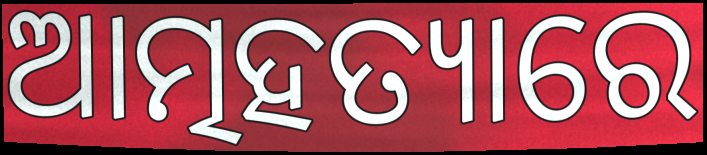
ଆତ୍ମହତ୍ୟାରେ